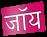
जॉय